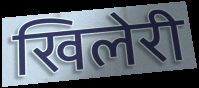
खिलेरी